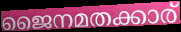
ജൈനമതക്കാര്